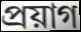
প্ৰয়াগ